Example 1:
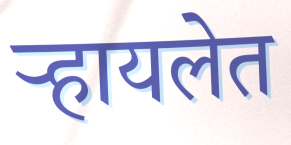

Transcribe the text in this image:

ऱ्हायलेत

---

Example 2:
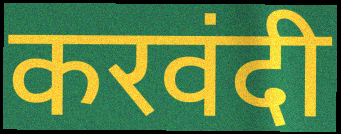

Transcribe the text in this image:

करवंदी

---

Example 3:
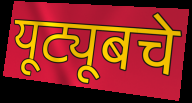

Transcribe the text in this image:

यूट्यूबचे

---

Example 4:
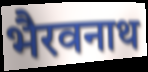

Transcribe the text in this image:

भैरवनाथ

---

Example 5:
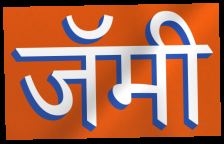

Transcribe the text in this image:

जॅमी